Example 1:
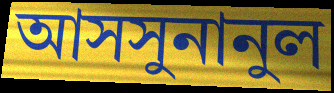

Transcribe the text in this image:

আসসুনানুল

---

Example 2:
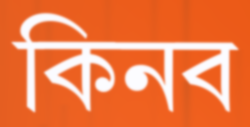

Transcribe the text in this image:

কিনব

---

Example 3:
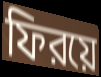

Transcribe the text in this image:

ফিরয়ে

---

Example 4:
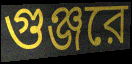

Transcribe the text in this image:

গুঞ্জরে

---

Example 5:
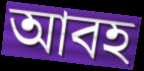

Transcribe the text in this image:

আবহ